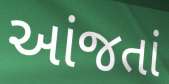
આંજતાં